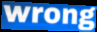
wrong